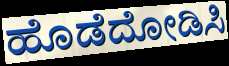
ಹೊಡೆದೋಡಿಸಿ